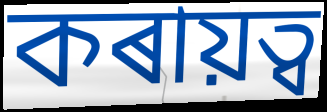
কৰায়ত্ব